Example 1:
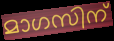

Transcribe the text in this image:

മാഗസിന്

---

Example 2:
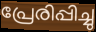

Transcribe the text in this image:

പ്രേരിപ്പിച്ചു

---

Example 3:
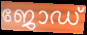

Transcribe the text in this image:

ജോഡ്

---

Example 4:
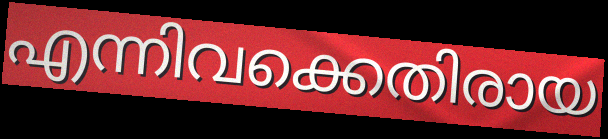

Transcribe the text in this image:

എന്നിവക്കെതിരായ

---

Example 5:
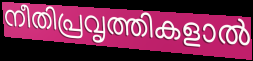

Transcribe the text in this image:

നീതിപ്രവൃത്തികളാൽ